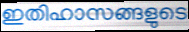
ഇതിഹാസങ്ങളുടെ